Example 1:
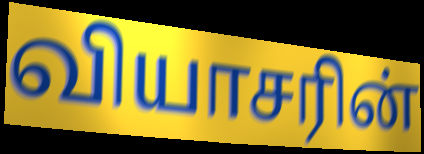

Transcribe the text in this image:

வியாசரின்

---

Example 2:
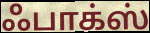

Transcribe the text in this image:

ஃபாக்ஸ்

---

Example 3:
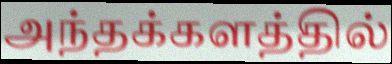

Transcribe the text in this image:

அந்தக்களத்தில்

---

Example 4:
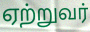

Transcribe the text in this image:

ஏற்றுவர்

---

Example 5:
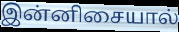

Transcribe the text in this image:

இன்னிசையால்